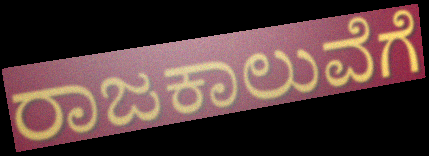
ರಾಜಕಾಲುವೆಗೆ